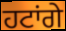
ਹਟਾਂਗੇ